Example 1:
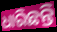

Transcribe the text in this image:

ଧାରିଛନ୍ତି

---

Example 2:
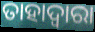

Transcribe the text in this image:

ତାହାଦ୍ୱାରା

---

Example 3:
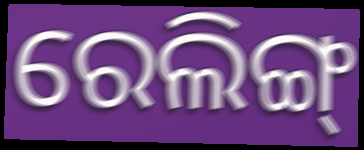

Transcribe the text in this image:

ରେଲିଙ୍ଗ୍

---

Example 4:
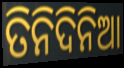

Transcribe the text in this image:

ତିନିଦିନିଆ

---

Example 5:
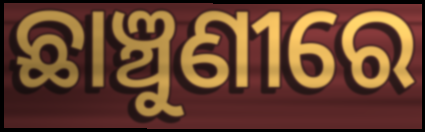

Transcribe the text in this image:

ଛାଞ୍ଚୁଣୀରେ